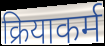
क्रियाकर्म